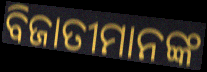
ବିଜାତୀମାନଙ୍କ